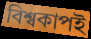
বিশ্বকাপই